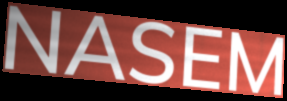
NASEM